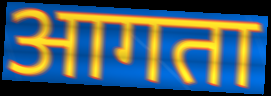
आगता